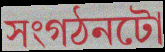
সংগঠনটো